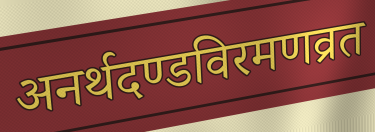
अनर्थदण्डविरमणव्रत